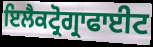
ਇਲੈਕਟ੍ਰੋਗ੍ਰਾਫਾਈਟ